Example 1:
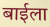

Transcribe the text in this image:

बाईला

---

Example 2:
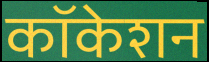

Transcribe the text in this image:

कॉकेशन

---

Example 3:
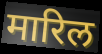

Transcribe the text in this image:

मारिल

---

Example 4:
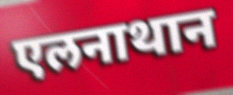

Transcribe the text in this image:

एलनाथान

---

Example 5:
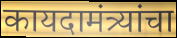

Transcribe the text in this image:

कायदामंत्र्यांचा